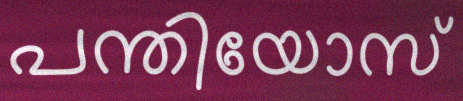
പന്തിയോസ്